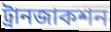
ট্রানজাকশন